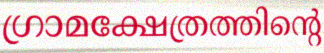
ഗ്രാമക്ഷേത്രത്തിന്റെ